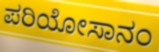
ಪರಿಯೋಸಾನಂ